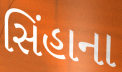
સિંહાના